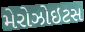
મેરોઝોઇટસ